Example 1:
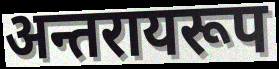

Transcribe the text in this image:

अन्तरायरूप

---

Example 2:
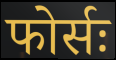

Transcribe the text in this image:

फोर्सः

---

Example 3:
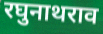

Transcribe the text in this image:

रघुनाथराव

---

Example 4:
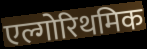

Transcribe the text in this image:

एल्गोरिथमिक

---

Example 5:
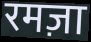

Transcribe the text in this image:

रमज़ा